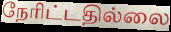
நேரிட்டதில்லை